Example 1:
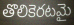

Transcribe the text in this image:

తొలికెరటమై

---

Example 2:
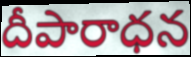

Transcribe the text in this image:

దీపారాధన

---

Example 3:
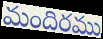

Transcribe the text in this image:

మందిరము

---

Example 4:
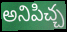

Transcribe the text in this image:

అనిపిచ్చ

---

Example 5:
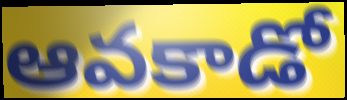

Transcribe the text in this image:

ఆవకాడో